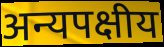
अन्यपक्षीय